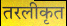
तरलीकृत